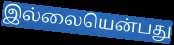
இல்லையென்பது